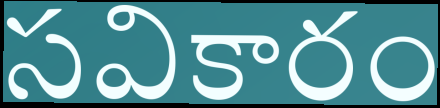
సవికారం